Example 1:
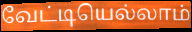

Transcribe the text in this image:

வேட்டியெல்லாம்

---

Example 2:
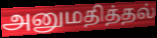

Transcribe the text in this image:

அனுமதித்தல்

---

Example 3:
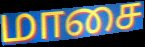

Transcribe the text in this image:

மாசை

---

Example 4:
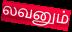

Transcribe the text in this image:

லவனும்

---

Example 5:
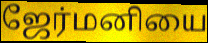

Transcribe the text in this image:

ஜேர்மனியை